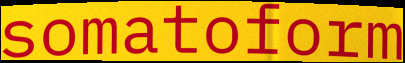
somatoform